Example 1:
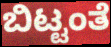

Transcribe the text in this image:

ಬಿಟ್ಟಂತೆ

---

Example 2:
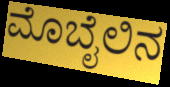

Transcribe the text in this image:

ಮೊಬೈಲಿನ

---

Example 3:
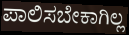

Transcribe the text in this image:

ಪಾಲಿಸಬೇಕಾಗಿಲ್ಲ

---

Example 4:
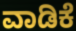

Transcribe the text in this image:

ವಾಡಿಕೆ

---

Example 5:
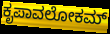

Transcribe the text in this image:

ಕೃಪಾವಲೋಕಮ್